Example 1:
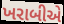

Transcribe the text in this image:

ખરાબીએ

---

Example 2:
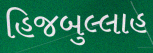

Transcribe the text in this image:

હિજબુલ્લાહ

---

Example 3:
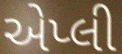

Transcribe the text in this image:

એપ્લી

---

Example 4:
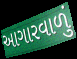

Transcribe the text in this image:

આગારવાળું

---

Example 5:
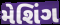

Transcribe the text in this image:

મેશિંગ